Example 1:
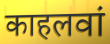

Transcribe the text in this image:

काहलवां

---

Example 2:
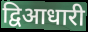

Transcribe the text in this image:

द्विआधारी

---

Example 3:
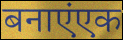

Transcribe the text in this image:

बनाएंएक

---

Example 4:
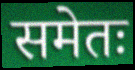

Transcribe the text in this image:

समेतः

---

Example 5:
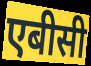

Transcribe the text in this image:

एबीसी